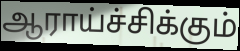
ஆராய்ச்சிக்கும்